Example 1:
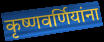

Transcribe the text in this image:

कृष्णवर्णियांना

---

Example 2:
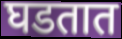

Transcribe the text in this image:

घडतात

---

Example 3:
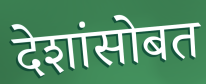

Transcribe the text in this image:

देशांसोबत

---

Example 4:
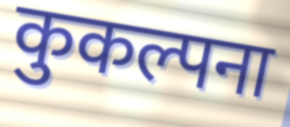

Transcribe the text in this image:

कुकल्पना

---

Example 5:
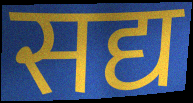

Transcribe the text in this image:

सद्य